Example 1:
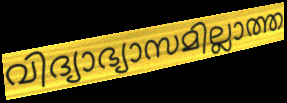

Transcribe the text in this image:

വിദ്യാഭ്യാസമില്ലാത്ത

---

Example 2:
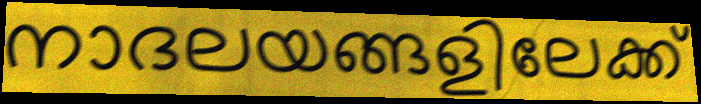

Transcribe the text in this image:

നാദലയങ്ങളിലേക്ക്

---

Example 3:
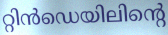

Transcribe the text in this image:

റ്റിൻഡെയിലിന്റെ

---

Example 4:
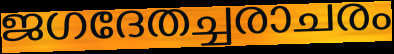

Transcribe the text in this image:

ജഗദേതച്ചരാചരം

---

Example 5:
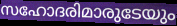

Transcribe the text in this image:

സഹോദരിമാരുടേയും